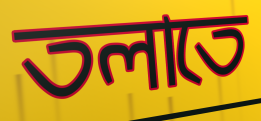
তলাতে